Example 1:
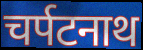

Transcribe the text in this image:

चर्पटनाथ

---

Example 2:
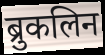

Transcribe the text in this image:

ब्रुकलिन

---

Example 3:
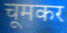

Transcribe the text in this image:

चूमकर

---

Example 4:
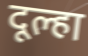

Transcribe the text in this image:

दूल्हा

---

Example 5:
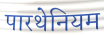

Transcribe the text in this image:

पारथेनियम